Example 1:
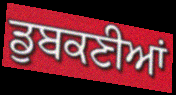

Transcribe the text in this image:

ਡੁਬਕਣੀਆਂ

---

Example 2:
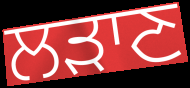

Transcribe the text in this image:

ਲੜਾਣ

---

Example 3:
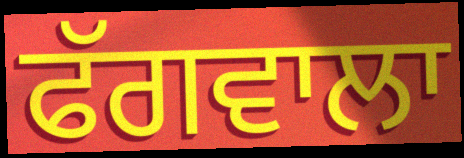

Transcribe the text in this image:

ਫੱਗਵਾਲਾ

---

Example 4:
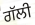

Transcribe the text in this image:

ਗੱਲੀ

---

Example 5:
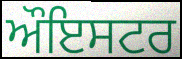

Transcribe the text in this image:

ਔਇਸਟਰ